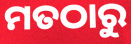
ମତଠାରୁ